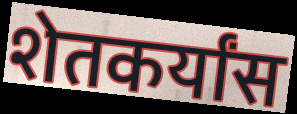
शेतकर्यांस